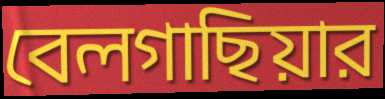
বেলগাছিয়ার